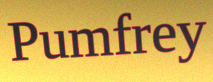
Pumfrey